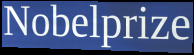
Nobelprize